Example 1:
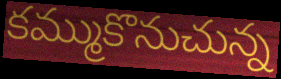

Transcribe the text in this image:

కమ్ముకొనుచున్న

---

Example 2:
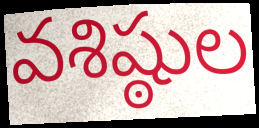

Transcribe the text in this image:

వశిష్ఠుల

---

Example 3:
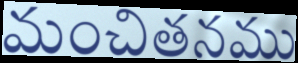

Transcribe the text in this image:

మంచితనము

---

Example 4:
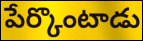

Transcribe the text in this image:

పేర్కొంటాడు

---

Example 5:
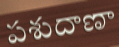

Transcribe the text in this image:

పశుదాణా